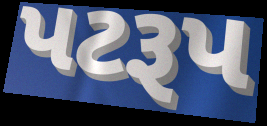
પટરૂપ